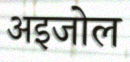
अइजोल